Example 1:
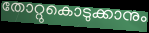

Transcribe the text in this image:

തോറ്റുകൊടുക്കാനും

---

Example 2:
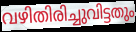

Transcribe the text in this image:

വഴിതിരിച്ചുവിട്ടതും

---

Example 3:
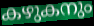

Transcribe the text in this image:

കഴുകനും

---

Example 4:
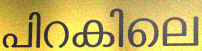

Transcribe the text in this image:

പിറകിലെ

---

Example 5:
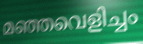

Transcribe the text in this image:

മഞ്ഞവെളിച്ചം